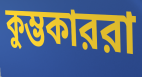
কুম্ভকাররা